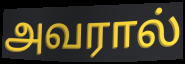
அவரால்